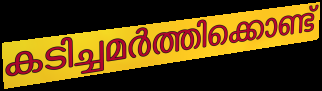
കടിച്ചമർത്തിക്കൊണ്ട്